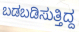
ಬಡಬಡಿಸುತ್ತಿದ್ದ